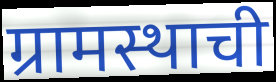
ग्रामस्थाची